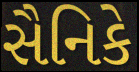
સૈનિકે